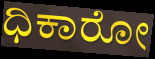
ಧಿಕಾರೋ